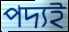
পদ্যই